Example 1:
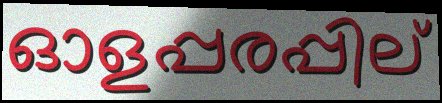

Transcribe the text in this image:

ഓളപ്പരപ്പില്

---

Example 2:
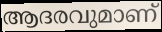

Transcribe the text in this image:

ആദരവുമാണ്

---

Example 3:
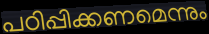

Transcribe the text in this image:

പഠിപ്പിക്കണമെന്നും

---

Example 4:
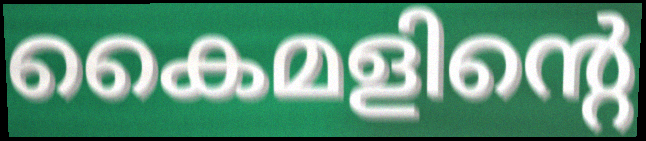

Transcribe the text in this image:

കൈമളിന്റെ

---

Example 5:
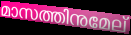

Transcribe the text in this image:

മാസത്തിനുമേല്